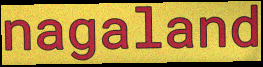
nagaland